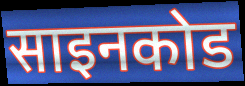
साइनकोड